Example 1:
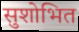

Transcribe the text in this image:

सुशोभित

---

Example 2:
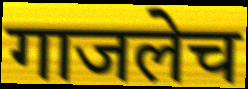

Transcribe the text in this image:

गाजलेच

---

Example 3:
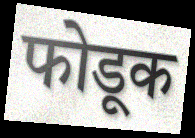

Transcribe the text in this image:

फोडूक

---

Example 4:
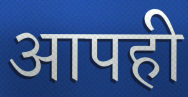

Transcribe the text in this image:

आपही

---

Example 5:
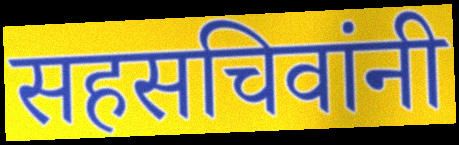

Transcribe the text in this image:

सहसचिवांनी